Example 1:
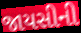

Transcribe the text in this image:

જાયસીની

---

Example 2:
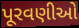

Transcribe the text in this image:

પૂરવણીઓ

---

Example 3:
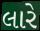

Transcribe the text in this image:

લારે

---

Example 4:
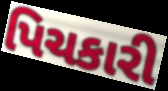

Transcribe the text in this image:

પિચકારી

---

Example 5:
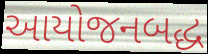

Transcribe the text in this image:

આયોજનબદ્ધ